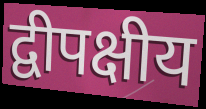
द्वीपक्षीय